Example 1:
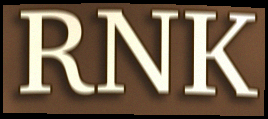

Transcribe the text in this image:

RNK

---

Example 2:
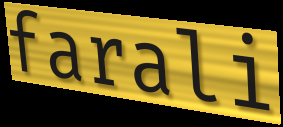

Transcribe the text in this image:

farali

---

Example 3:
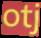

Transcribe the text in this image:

otj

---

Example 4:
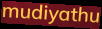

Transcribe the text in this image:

mudiyathu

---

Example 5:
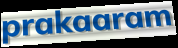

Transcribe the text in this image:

prakaaram